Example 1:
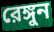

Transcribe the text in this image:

রেঙ্গুন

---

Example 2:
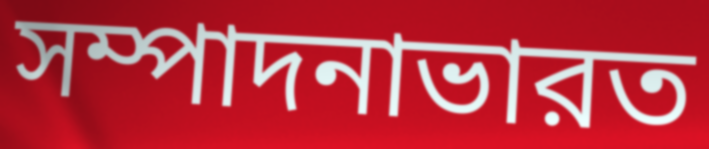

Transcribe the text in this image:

সম্পাদনাভারত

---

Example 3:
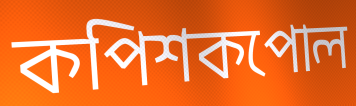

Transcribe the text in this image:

কপিশকপোল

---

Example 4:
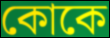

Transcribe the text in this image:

কোকে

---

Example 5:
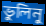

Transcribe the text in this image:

ভুলিনু